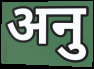
अनु